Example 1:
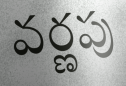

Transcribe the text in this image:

వర్ణపు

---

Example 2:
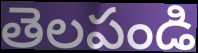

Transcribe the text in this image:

తెలపండి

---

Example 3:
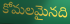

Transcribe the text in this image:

కోమలమైనది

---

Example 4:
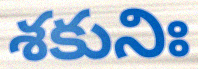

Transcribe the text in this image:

శకునిః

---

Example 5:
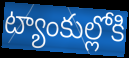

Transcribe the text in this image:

ట్యాంకుల్లోకి